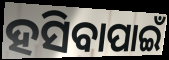
ହସିବାପାଇଁ